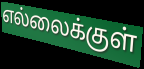
எல்லைக்குள்